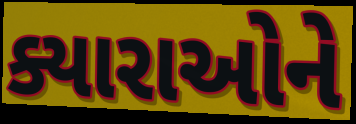
ક્યારાઓને